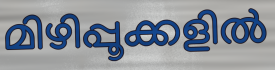
മിഴിപ്പൂക്കളിൽ